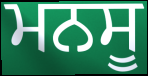
ਮਨਸੂ